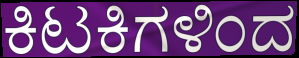
ಕಿಟಕಿಗಳಿಂದ